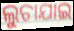
ଲୁଚାଯାଇ